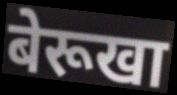
बेरूखा